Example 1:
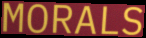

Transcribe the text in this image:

MORALS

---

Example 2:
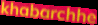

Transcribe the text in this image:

khabarchhe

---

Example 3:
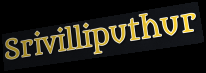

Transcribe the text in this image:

Srivilliputhur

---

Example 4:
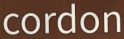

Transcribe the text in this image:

cordon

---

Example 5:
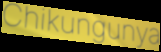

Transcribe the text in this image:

Chikungunya